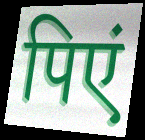
पिएं